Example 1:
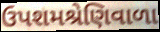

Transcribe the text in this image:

ઉપશમશ્રેણિવાળા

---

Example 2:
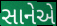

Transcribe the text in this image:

સાનેએ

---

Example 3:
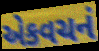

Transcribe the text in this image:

એકવચનં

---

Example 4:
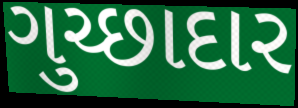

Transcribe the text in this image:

ગુચ્છાદાર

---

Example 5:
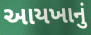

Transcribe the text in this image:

આયખાનું